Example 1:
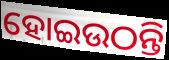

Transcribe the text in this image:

ହୋଇଉଠନ୍ତି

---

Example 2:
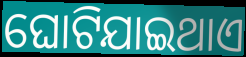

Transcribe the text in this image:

ଘୋଟିଯାଇଥାଏ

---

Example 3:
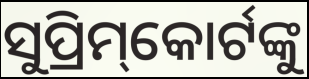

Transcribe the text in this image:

ସୁପ୍ରିମ୍‌କୋର୍ଟଙ୍କୁ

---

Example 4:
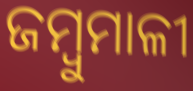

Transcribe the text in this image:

ଜମ୍ବୁମାଳୀ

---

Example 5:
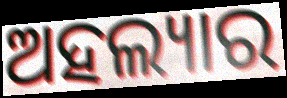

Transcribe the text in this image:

ଅହଲ୍ୟାର